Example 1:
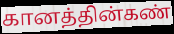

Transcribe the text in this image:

கானத்தின்கண்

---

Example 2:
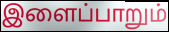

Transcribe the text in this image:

இளைப்பாறும்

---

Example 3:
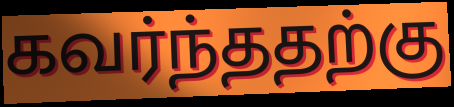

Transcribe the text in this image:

கவர்ந்ததற்கு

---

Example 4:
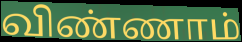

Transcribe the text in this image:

விண்ணாம்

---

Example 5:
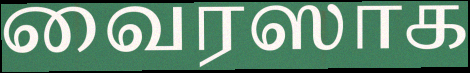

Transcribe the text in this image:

வைரஸாக